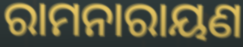
ରାମନାରାୟଣ